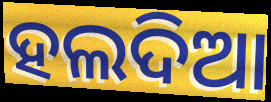
ହଲଦିଆ